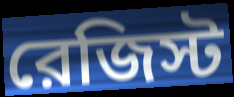
রেজিস্ট